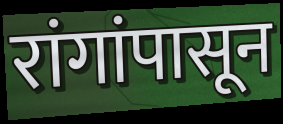
रांगांपासून